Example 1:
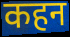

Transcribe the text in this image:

कहन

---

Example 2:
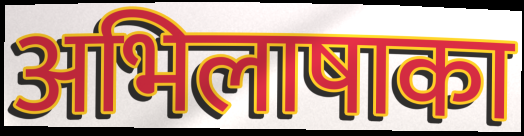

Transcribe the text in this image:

अभिलाषाका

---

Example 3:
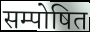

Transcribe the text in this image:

सम्पोषित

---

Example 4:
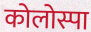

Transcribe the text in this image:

कोलोस्पा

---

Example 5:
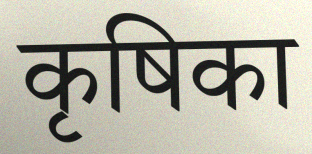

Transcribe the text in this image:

कृषिका